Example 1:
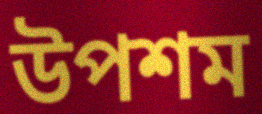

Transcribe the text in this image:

উপশম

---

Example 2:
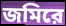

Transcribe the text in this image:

জমিরে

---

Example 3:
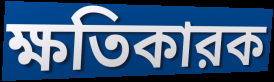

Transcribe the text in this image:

ক্ষতিকারক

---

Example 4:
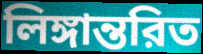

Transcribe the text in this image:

লিঙ্গান্তরিত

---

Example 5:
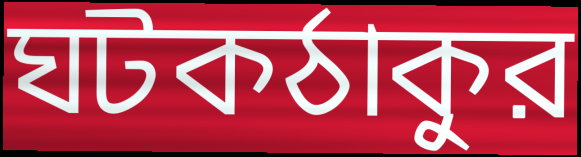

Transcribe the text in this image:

ঘটকঠাকুর